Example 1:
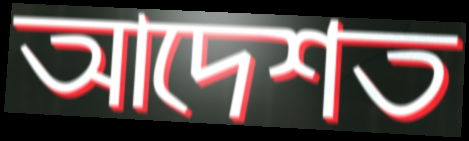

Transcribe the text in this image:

আদেশত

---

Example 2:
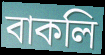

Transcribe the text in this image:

বাকলি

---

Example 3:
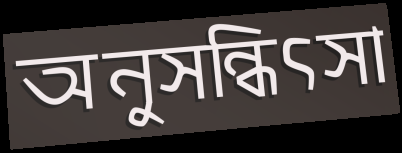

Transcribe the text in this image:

অনুসন্ধিৎসা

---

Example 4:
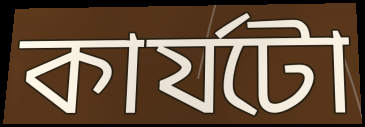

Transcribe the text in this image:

কাৰ্যটো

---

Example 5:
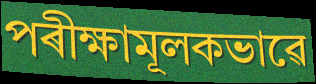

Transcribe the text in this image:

পৰীক্ষামূলকভাৱে